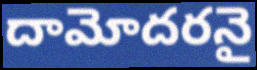
దామోదరనై